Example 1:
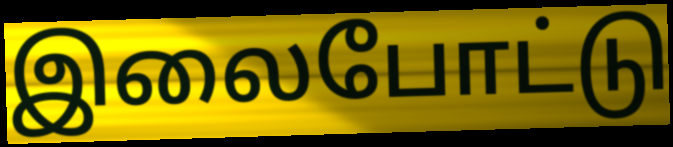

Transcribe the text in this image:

இலைபோட்டு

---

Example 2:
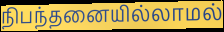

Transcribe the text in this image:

நிபந்தனையில்லாமல்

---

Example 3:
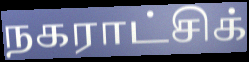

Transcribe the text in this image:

நகராட்சிக்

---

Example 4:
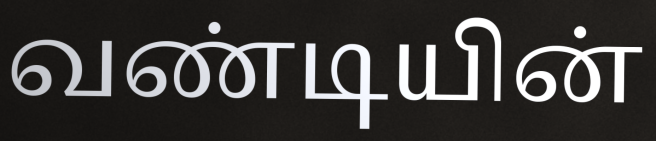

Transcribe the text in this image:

வண்டியின்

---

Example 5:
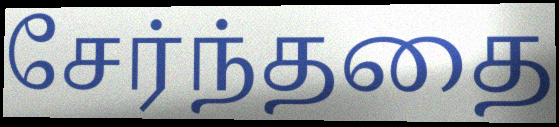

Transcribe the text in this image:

சேர்ந்ததை